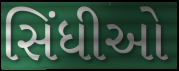
સિંધીઓ